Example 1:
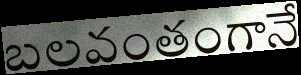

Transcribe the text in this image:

బలవంతంగానే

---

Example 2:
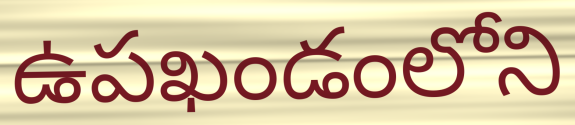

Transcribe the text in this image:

ఉపఖండంలోని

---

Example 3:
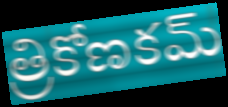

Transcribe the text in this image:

త్రికోణకమ్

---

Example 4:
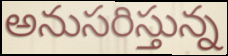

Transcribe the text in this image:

అనుసరిస్తున్న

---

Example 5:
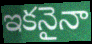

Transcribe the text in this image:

ఇకనైనా